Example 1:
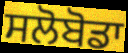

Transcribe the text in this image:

ਸਲੋਬੋਡਾ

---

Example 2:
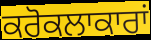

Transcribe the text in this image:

ਕਰੋਕਲਾਕਾਰਾਂ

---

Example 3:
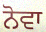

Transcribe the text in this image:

ਨੋਵਾ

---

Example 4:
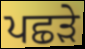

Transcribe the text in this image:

ਪਛੜੇ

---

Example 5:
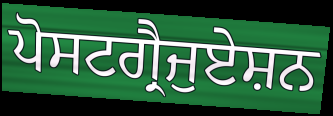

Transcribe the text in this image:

ਪੋਸਟਗ੍ਰੈਜੁਏਸ਼ਨ